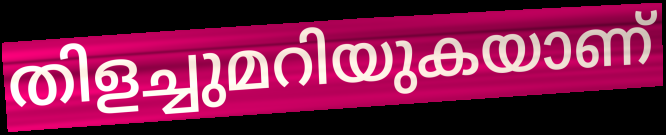
തിളച്ചുമറിയുകയാണ്